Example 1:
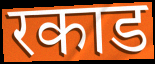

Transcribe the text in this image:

रकाड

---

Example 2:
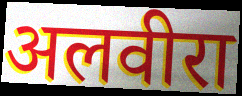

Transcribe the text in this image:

अलवीरा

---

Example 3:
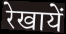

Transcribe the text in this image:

रेखायें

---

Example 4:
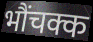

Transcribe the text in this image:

भौंचक्क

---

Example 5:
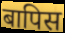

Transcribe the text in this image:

बापिस